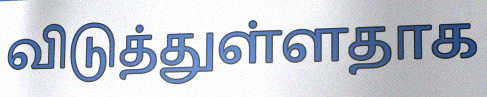
விடுத்துள்ளதாக